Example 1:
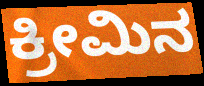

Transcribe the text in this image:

ಕ್ರೀಮಿನ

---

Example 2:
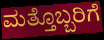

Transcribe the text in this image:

ಮತ್ತೊಬ್ಬರಿಗೆ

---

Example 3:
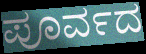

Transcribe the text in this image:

ಪೂರ್ವದ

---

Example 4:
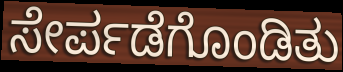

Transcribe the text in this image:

ಸೇರ್ಪಡೆಗೊಂಡಿತು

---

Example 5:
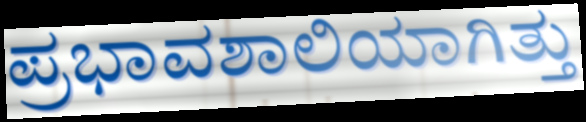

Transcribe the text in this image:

ಪ್ರಭಾವಶಾಲಿಯಾಗಿತ್ತು